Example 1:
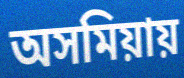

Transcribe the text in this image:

অসমিয়ায়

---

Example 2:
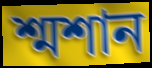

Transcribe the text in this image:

শ্মশান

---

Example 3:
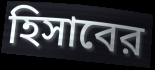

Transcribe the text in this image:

হিসাবের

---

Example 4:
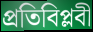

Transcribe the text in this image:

প্রতিবিপ্লবী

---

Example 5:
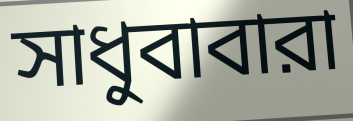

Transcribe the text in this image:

সাধুবাবারা